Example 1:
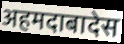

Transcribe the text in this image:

अहमदाबादेस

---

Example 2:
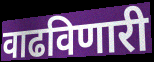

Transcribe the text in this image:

वाढविणारी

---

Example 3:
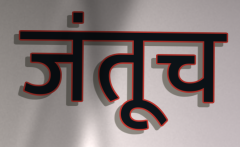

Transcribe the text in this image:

जंतूच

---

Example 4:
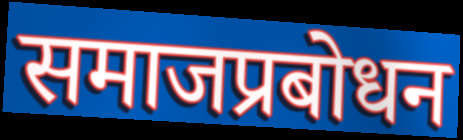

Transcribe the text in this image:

समाजप्रबोधन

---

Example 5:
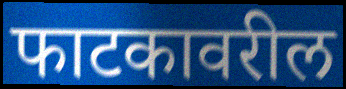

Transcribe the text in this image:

फाटकावरील